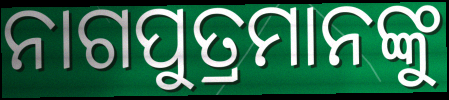
ନାଗପୁତ୍ରମାନଙ୍କୁ